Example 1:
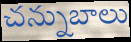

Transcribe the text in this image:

చన్నుబాలు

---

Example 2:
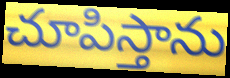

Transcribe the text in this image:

చూపిస్తాను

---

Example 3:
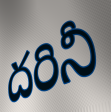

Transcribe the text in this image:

దరినీ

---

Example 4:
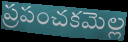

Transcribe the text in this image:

ప్రపంచకమెల్ల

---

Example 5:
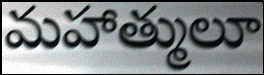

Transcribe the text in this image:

మహాత్ములూ